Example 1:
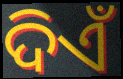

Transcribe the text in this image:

ଦିଏଁ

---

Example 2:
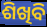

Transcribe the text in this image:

ଶିଖିବି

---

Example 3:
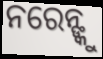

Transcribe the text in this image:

ନରେନ୍ଙ୍କୁ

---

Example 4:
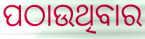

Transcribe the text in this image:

ପଠାଉଥିବାର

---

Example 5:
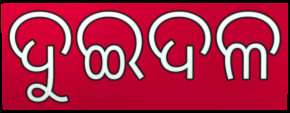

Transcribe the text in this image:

ଦୁଇଦଳ